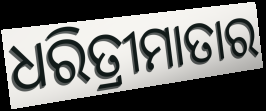
ଧରିତ୍ରୀମାତାର